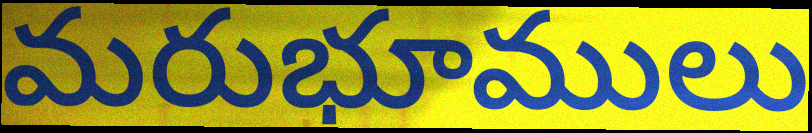
మరుభూములు